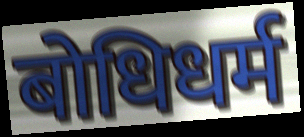
बोधिधर्म